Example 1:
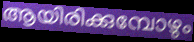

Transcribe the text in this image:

ആയിരിക്കുമ്പോഴും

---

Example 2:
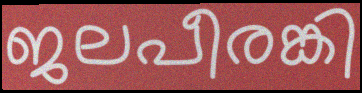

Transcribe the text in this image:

ജലപീരങ്കി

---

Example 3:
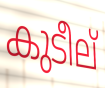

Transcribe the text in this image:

കുടീല്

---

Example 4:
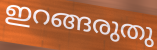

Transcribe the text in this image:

ഇറങ്ങരുതു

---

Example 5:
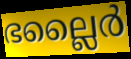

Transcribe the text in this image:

ഭല്ലൈർ